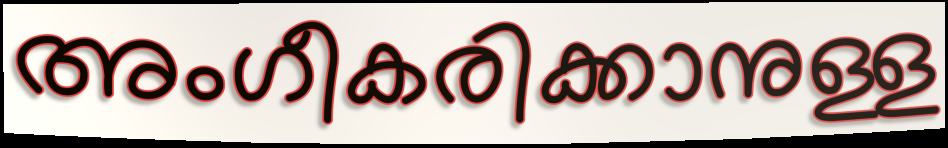
അംഗീകരിക്കാനുള്ള